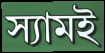
স্যামই